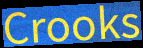
Crooks